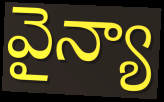
వైన్యా